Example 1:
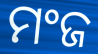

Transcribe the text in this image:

ମଂଜ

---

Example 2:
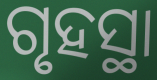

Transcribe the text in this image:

ଗୃହସ୍ଥା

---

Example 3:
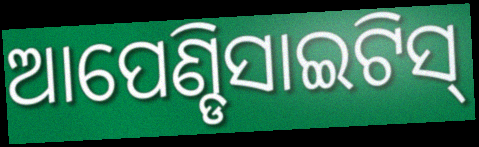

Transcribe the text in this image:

ଆପେଣ୍ଡିସାଇଟିସ୍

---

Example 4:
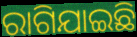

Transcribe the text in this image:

ରାଗିଯାଇଛି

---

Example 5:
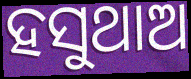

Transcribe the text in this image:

ହସୁଥାଅ